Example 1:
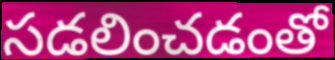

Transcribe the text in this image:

సడలించడంతో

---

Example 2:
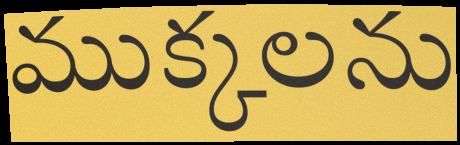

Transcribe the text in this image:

ముక్కలను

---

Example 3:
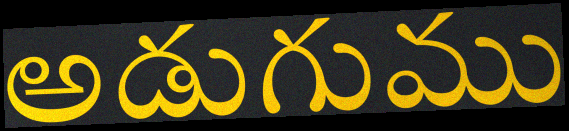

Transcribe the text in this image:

అడుగుము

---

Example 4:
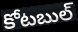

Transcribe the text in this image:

కోటబుల్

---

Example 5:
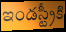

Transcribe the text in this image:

ఇండస్ట్రీకి